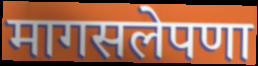
मागसलेपणा